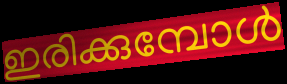
ഇരിക്കുമ്പോൾ